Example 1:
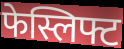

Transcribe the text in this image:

फेस्लिफ्ट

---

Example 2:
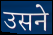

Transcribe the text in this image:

उसने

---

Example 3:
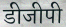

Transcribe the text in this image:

डीजीपी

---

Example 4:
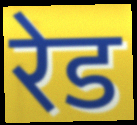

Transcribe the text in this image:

रेड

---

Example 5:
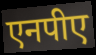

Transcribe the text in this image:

एनपीए